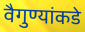
वैगुण्यांकडे